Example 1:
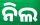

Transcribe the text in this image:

ନିଲ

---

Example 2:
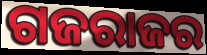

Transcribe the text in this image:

ଗଜରାଜର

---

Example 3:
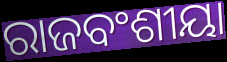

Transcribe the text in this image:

ରାଜବଂଶୀୟା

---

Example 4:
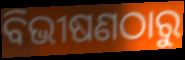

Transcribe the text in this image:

ବିଭୀଷଣଠାରୁ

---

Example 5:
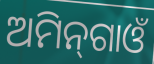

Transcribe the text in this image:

ଅମିନ୍‌ଗାଓଁ